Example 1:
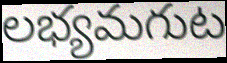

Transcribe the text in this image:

లభ్యమగుట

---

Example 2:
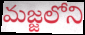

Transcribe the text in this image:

మజ్జలోని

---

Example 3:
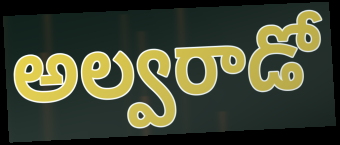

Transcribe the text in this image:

అల్వరాడో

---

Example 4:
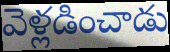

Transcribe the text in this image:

వెళ్లడించాడు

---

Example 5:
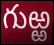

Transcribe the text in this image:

గుఱ్ఱ